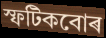
স্ফটিকবোৰ